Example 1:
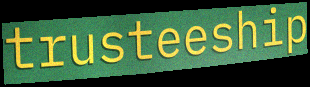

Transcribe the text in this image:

trusteeship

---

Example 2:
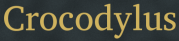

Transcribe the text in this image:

Crocodylus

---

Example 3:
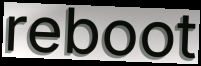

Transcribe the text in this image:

reboot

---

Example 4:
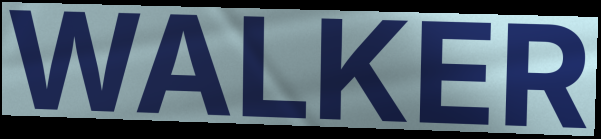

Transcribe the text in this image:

WALKER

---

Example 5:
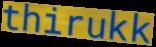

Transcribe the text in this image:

thirukk